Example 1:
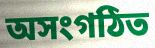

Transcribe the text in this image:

অসংগঠিত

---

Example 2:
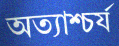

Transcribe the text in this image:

অত্যাশ্চর্য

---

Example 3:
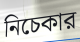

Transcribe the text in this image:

নিচেকার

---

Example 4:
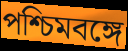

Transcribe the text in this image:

পশ্চিমবঙ্গে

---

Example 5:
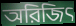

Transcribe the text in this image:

অরিজিৎ